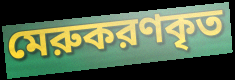
মেরুকরণকৃত